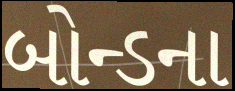
બોન્ડના